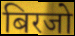
बिरजो